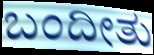
ಬಂದೀತು